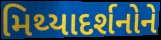
મિથ્યાદર્શનોને